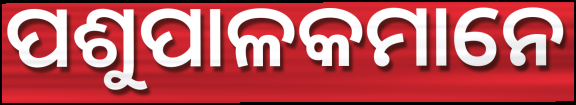
ପଶୁପାଳକମାନେ